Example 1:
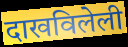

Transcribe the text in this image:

दाखविलेली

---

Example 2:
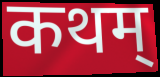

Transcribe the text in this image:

कथम्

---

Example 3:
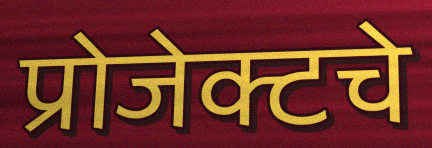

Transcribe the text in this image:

प्रोजेक्टचे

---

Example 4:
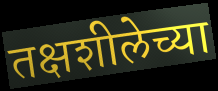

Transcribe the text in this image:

तक्षशीलेच्या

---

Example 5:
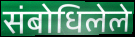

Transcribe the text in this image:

संबोधिलेले